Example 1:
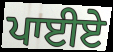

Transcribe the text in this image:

ਪਾਈਏ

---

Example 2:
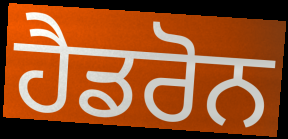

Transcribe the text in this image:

ਹੈਡਰੋਨ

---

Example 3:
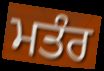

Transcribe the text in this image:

ਮਤੰਰ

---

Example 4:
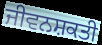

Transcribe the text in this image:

ਜੀਵਨਸ਼ਕਤੀ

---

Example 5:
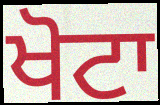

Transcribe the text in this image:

ਖੋਟਾ